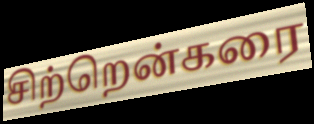
சிற்றென்கரை